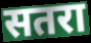
सतरा